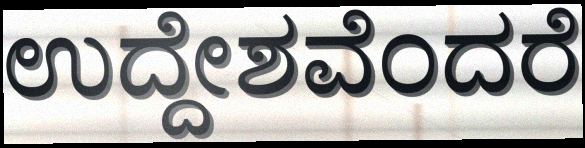
ಉದ್ದೇಶವೆಂದರೆ